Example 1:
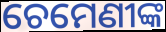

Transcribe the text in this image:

ଚେମେଣୀଙ୍କ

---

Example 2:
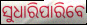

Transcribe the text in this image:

ସୁଧାରିପାରିବେ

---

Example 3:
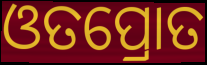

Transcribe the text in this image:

ଓତପ୍ରୋତ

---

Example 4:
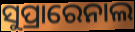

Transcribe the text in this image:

ସୁପ୍ରାରେନାଲ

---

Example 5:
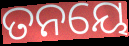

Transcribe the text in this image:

ତନୟେ